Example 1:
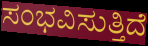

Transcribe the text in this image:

ಸಂಭವಿಸುತ್ತಿದೆ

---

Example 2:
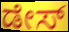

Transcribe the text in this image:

ಡೇಸ್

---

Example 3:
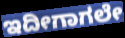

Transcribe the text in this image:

ಇದೀಗಾಗಲೇ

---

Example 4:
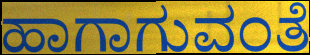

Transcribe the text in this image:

ಹಾಗಾಗುವಂತೆ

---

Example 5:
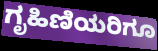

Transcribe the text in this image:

ಗೃಹಿಣಿಯರಿಗೂ